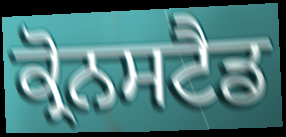
ਕ੍ਰੋਨਸਟੈਡ